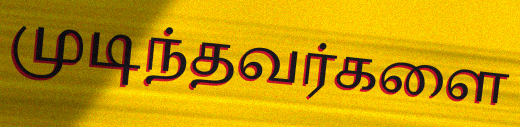
முடிந்தவர்களை